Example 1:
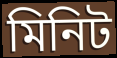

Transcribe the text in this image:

মিনিট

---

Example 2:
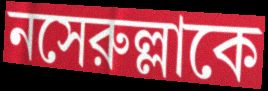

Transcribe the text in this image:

নসেরুল্লাকে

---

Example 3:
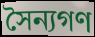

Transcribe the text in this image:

সৈন্যগণ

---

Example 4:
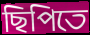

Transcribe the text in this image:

ছিপিতে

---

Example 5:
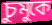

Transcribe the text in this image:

চুমুকে